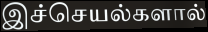
இச்செயல்களால்